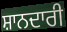
ਸ਼ਾਨਦਾਰੀ